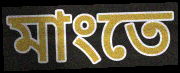
মাংতে